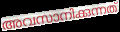
അവസാനിക്കുന്നത്